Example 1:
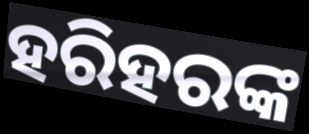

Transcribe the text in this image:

ହରିହରଙ୍କ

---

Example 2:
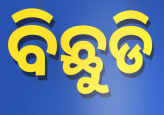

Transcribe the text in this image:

ବିଛୁଡି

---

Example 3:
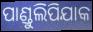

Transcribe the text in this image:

ପାଣ୍ଡୁଲିପିଯାକ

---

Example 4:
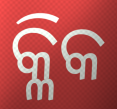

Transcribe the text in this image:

କ୍ଳିକ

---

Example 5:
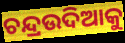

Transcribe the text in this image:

ଚନ୍ଦ୍ରଉଦିଆକୁ